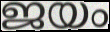
ജയം